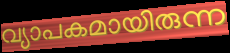
വ്യാപകമായിരുന്ന